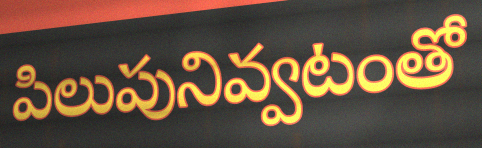
పిలుపునివ్వటంతో